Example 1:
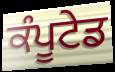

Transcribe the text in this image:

ਕੰਪੂਟੇਡ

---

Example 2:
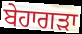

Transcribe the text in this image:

ਬੇਹਾਗੜਾ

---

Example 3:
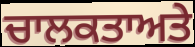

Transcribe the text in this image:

ਚਾਲਕਤਾਅਤੇ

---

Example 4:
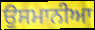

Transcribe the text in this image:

ਉਸਮਾਨੀਆ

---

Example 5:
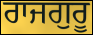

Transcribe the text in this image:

ਰਾਜਗੁਰੂ